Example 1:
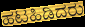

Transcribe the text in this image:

ಹಟಹಿಡಿದರು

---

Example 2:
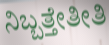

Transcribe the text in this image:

ನಿಬ್ಬತ್ತೇತೀತಿ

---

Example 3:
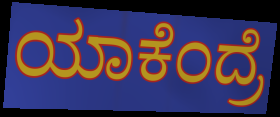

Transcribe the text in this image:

ಯಾಕೆಂದ್ರೆ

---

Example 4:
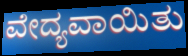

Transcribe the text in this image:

ವೇದ್ಯವಾಯಿತು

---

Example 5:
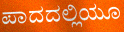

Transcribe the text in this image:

ಪಾದದಲ್ಲಿಯೂ